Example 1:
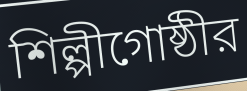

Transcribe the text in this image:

শিল্পীগোষ্ঠীর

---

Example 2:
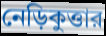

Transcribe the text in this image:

নেড়িকুত্তার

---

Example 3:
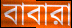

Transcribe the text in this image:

বাবারা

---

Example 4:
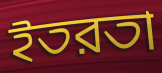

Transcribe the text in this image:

ইতরতা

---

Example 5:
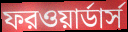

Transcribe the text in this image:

ফরওয়ার্ডার্স